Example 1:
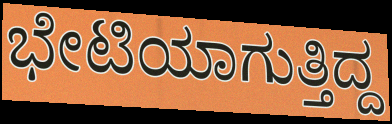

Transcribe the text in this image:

ಭೇಟಿಯಾಗುತ್ತಿದ್ದ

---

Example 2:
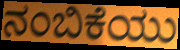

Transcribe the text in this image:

ನಂಬಿಕೆಯು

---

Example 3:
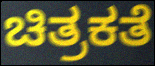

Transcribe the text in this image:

ಚಿತ್ರಕತೆ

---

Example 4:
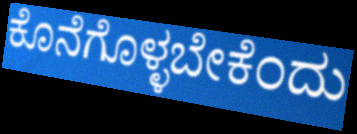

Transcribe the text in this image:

ಕೊನೆಗೊಳ್ಳಬೇಕೆಂದು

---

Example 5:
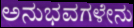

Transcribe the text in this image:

ಅನುಭವಗಳೇನು